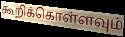
கூறிக்கொள்ளவும்